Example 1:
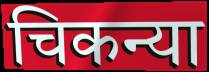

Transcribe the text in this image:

चिकन्या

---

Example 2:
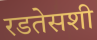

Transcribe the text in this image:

रडतेसशी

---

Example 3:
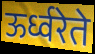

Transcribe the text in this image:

ऊर्ध्वरेते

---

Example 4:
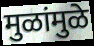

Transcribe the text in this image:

मुळांमुळे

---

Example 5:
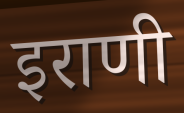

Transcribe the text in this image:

इराणी